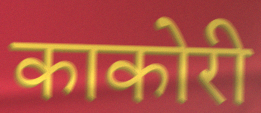
काकोरी